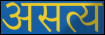
असत्य